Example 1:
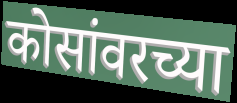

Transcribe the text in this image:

कोसांवरच्या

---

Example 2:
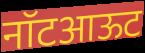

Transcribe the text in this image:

नॉटआऊट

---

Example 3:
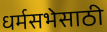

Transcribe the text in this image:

धर्मसभेसाठी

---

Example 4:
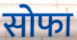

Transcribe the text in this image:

सोफा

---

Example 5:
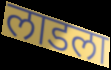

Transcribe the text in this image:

लाडला